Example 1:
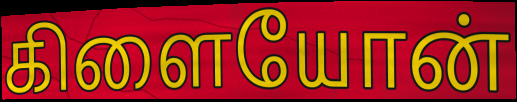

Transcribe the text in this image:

கிளையோன்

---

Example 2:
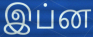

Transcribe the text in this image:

இப்ன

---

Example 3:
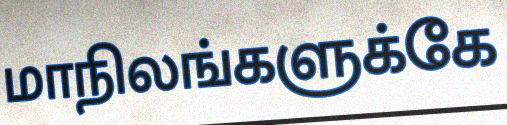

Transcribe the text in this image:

மாநிலங்களுக்கே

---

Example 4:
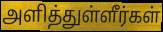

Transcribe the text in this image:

அளித்துள்ளீர்கள்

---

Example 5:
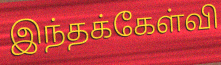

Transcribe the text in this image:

இந்தக்கேள்வி